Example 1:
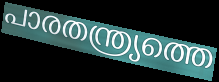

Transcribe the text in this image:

പാരതന്ത്ര്യത്തെ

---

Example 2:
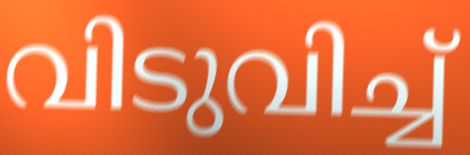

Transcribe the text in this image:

വിടുവിച്ച്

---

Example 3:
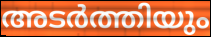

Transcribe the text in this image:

അടർത്തിയും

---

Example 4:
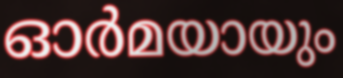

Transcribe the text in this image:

ഓർമയായും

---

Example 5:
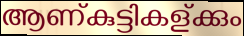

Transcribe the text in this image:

ആണ്കുട്ടികള്ക്കും